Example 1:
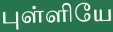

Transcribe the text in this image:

புள்ளியே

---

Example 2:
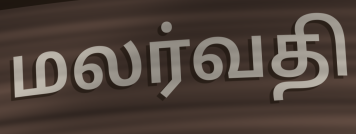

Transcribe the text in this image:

மலர்வதி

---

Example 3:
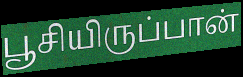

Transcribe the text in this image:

பூசியிருப்பான்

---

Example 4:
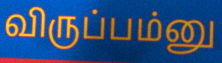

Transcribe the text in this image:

விருப்பம்னு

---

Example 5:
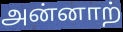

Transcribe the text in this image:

அன்னாற்